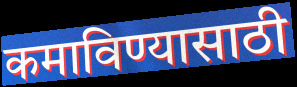
कमाविण्यासाठी